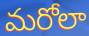
మరోలా